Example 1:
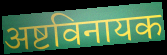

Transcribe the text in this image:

अष्टविनायक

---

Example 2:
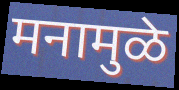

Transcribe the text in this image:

मनामुळे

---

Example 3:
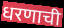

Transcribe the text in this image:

धरणाची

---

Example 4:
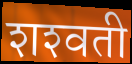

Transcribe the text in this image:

शश्वती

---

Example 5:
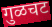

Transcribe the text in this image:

गुळचट